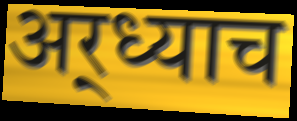
अर्ध्याच